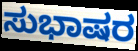
ಸುಭಾಷರ